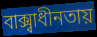
বাক্স্বাধীনতায়